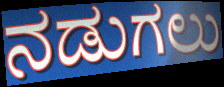
ನಡುಗಲು